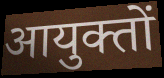
आयुक्तों